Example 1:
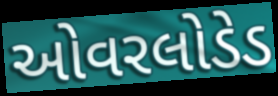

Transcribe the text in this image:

ઓવરલોડેડ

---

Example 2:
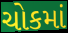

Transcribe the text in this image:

ચોકમાં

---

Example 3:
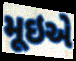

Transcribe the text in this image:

મૂઇએ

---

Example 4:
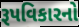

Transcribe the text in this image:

રૂપવિકારનો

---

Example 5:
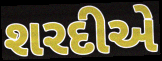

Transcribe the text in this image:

શરદીએ